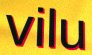
vilu